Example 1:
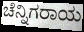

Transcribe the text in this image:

ಚೆನ್ನಿಗರಾಯ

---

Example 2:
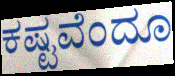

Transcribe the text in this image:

ಕಷ್ಟವೆಂದೂ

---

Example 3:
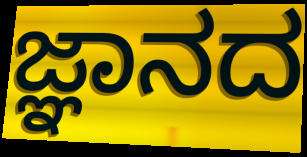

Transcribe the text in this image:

ಜ್ಞಾನದ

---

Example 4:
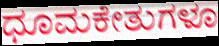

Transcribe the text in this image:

ಧೂಮಕೇತುಗಳೂ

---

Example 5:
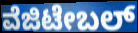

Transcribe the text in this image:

ವೆಜಿಟೇಬಲ್